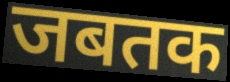
जबतक